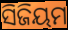
ସିଜିୟମ